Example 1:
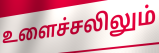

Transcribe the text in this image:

உளைச்சலிலும்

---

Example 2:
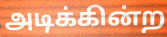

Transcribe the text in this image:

அடிக்கின்ற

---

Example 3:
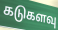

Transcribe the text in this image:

கடுகளவு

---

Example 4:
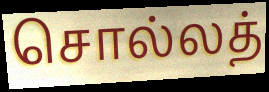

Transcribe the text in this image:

சொல்லத்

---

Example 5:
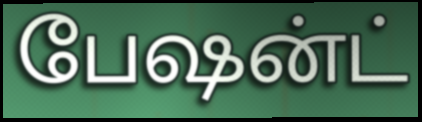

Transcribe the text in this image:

பேஷன்ட்